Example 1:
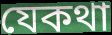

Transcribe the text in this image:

যেকথা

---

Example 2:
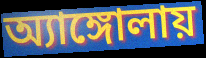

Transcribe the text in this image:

অ্যাঙ্গোলায়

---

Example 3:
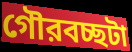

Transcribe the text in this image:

গৌরবচ্ছটা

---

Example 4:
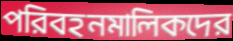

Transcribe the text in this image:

পরিবহনমালিকদের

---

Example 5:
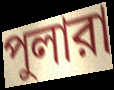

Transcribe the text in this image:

পুলারা